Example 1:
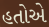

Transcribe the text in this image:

હતોએ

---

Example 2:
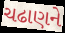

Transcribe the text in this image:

ચઢાણને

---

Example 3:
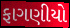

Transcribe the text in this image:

ફાગણીયો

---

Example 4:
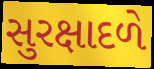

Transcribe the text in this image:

સુરક્ષાદળે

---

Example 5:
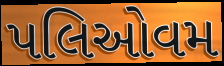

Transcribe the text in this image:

પલિઓવમ